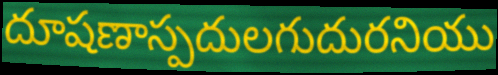
దూషణాస్పదులగుదురనియు